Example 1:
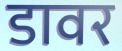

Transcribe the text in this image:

डावर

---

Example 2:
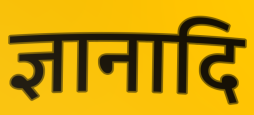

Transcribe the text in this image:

ज्ञानादि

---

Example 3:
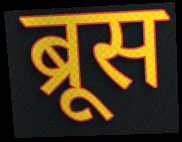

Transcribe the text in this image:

ब्रूस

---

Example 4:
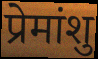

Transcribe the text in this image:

प्रेमांशु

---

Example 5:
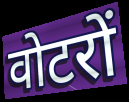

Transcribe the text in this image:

वोटरों